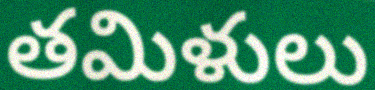
తమిళులు